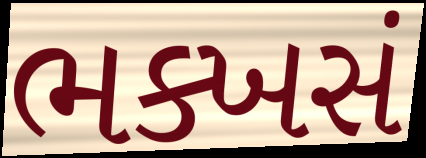
ભક્ખસં